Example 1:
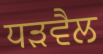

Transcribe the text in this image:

ਧੜਵੈਲ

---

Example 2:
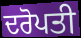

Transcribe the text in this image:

ਦਰੋਪਤੀ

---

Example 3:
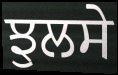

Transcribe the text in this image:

ਝੁਲਸੇ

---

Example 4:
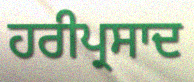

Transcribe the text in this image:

ਹਰੀਪ੍ਰਸਾਦ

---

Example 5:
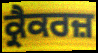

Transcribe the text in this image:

ਕ੍ਰੈਕਰਜ਼